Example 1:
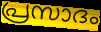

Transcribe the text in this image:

പ്രസാദം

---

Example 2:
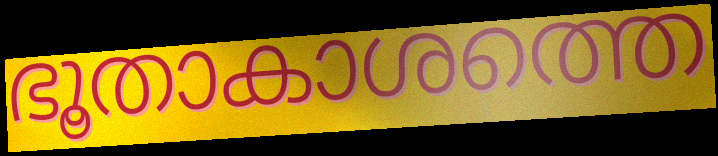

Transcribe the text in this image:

ഭൂതാകാശത്തെ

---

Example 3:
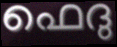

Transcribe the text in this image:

ഫെദു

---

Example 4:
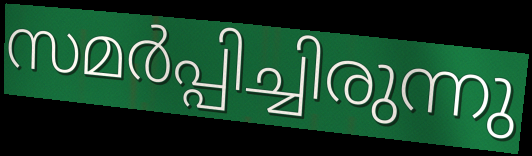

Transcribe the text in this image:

സമർപ്പിച്ചിരുന്നു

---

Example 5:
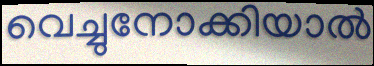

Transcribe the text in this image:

വെച്ചുനോക്കിയാൽ